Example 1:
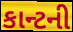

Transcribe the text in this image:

કાન્ટની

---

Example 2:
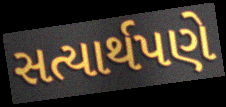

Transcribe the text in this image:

સત્યાર્થપણે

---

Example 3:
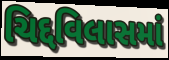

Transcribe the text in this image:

ચિદ્દવિલાસમાં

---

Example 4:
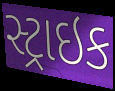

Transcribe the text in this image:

સ્ટ્રાઇક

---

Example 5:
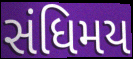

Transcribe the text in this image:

સંધિમય